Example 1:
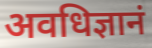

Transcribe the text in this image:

अवधिज्ञानं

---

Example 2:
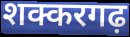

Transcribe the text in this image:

शक्करगढ़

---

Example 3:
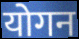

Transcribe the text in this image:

योगन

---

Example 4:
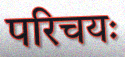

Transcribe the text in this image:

परिचयः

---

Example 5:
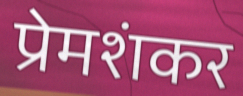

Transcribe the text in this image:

प्रेमशंकर